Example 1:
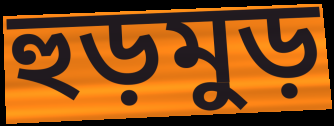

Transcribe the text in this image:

হুড়মুড়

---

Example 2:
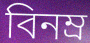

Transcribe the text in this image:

বিনম্র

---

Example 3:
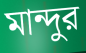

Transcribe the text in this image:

মান্দুর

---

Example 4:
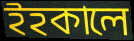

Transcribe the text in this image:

ইহকালে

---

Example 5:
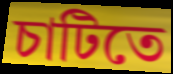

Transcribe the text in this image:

চাটিতে